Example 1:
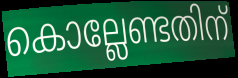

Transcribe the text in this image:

കൊല്ലേണ്ടതിന്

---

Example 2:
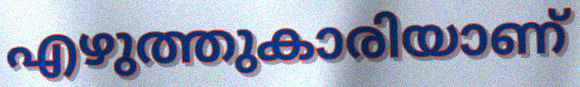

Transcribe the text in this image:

എഴുത്തുകാരിയാണ്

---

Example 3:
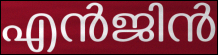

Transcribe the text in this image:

എൻജിൻ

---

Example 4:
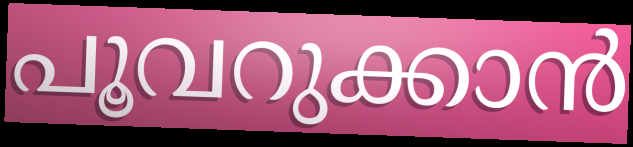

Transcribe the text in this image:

പൂവറുക്കാൻ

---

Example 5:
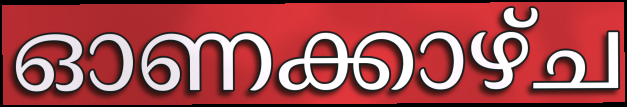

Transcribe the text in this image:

ഓണക്കാഴ്ച